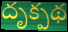
దృక్పథ